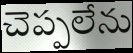
చెప్పలేను